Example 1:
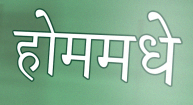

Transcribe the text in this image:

होममधे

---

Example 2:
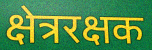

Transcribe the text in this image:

क्षेत्ररक्षक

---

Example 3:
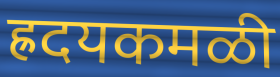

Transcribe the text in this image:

ह्रदयकमळी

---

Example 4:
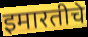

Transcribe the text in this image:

इमारतीचे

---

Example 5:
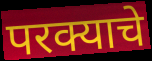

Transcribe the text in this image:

परक्याचे